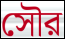
সৌর